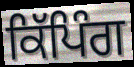
ਕਿੱਪਿੰਗ